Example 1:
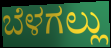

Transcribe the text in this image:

ಬೆಳಗಲ್ಲು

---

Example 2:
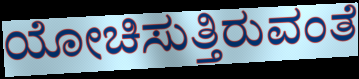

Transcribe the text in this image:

ಯೋಚಿಸುತ್ತಿರುವಂತೆ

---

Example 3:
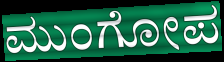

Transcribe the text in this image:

ಮುಂಗೋಪ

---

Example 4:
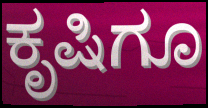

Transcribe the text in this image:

ಕೃಷಿಗೂ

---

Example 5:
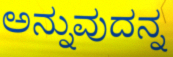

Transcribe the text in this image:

ಅನ್ನುವುದನ್ನ